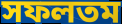
সফলতম